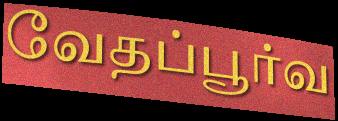
வேதப்பூர்வ